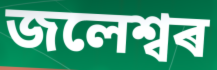
জলেশ্বৰ